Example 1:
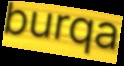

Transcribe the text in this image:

burqa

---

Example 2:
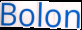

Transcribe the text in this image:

Bolon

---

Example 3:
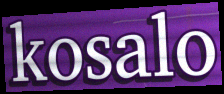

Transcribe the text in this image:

kosalo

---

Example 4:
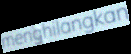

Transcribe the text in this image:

menghilangkan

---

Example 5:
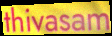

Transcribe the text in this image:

thivasam